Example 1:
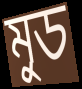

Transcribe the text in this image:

মুড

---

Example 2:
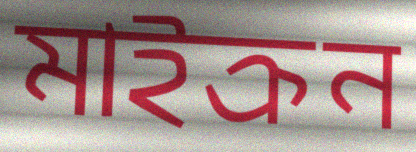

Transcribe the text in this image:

মাইক্রন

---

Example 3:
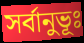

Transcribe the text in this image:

সর্বানুভূঃ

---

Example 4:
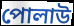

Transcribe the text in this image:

পোলাউ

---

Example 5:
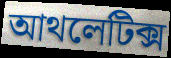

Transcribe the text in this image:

আথলেটিক্স